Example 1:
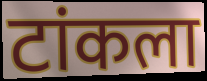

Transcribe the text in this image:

टांकला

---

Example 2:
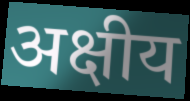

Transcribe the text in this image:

अक्षीय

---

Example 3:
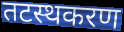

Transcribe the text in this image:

तटस्थकरण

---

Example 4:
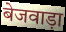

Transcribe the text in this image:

बेजवाड़ा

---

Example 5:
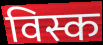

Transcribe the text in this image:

विस्क